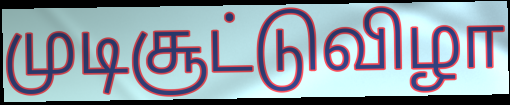
முடிசூட்டுவிழா